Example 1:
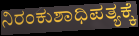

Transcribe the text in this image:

ನಿರಂಕುಶಾಧಿಪತ್ಯಕ್ಕೆ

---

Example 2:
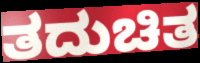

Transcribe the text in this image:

ತದುಚಿತ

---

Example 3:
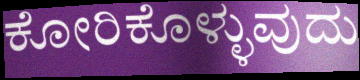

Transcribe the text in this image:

ಕೋರಿಕೊಳ್ಳುವುದು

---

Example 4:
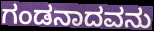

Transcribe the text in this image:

ಗಂಡನಾದವನು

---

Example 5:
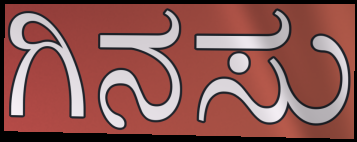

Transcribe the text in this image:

ಗಿನಸು